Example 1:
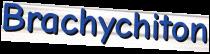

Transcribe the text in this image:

Brachychiton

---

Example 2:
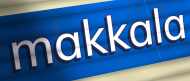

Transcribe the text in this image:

makkala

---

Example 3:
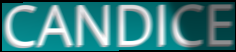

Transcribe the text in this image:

CANDICE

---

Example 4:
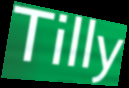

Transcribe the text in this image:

Tilly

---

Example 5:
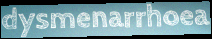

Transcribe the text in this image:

dysmenarrhoea